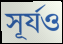
সূর্যও